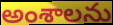
అంశాలను